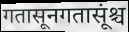
गतासूनगतासूंश्च